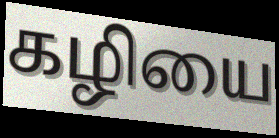
கழியை